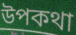
উপকথা